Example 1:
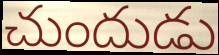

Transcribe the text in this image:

చుందుడు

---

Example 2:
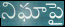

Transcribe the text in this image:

నిఘాపై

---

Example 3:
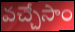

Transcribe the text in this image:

వచ్చేసాం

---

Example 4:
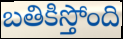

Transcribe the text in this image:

బతికిస్తోంది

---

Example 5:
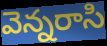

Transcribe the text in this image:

వెన్నరాసి